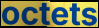
octets